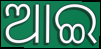
ଆଇ